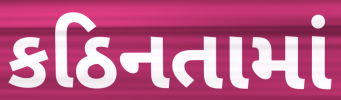
કઠિનતામાં